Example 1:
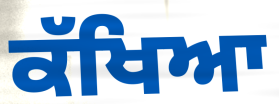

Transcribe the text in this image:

ਕੱਖਿਆ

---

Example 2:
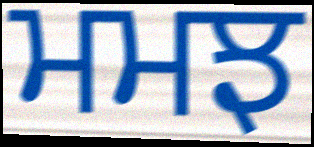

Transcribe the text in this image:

ਮਮਝ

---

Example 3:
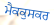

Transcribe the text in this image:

ਮੈਕਕੁਸਕਰ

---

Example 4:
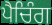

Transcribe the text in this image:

ਪੈਚਿੰਗ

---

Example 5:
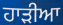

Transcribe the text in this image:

ਹਾੜੀਆ